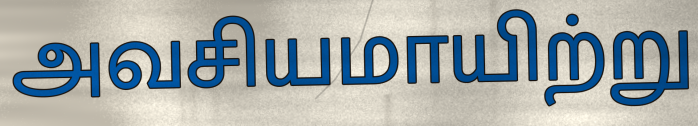
அவசியமாயிற்று